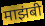
माझंबी